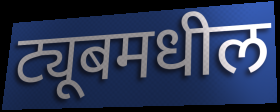
ट्यूबमधील